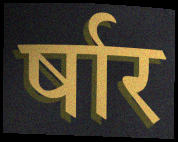
र्षार